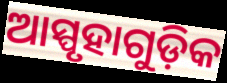
ଆସ୍ପୃହାଗୁଡ଼ିକ